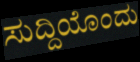
ಸುದ್ದಿಯೊಂದು